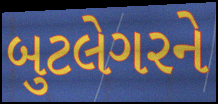
બુટલેગરને